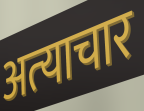
अत्‍याचार